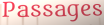
Passages